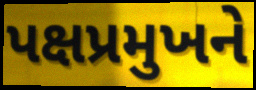
પક્ષપ્રમુખને